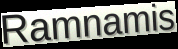
Ramnamis